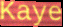
Kaye